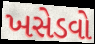
ખસેડવો